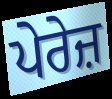
ਪੇਰੇਜ਼